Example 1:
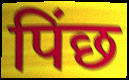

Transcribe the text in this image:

पिंछ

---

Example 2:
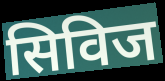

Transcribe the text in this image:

सिविज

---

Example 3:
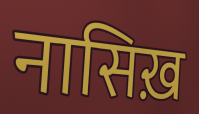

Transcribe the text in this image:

नासिख़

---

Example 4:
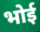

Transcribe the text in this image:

भोई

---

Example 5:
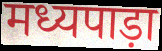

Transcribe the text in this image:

मध्यपाड़ा